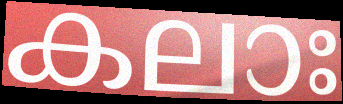
കലാഃ